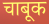
चाबूक